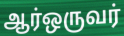
ஆர்ஒருவர்